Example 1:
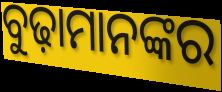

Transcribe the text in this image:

ବୁଢ଼ାମାନଙ୍କର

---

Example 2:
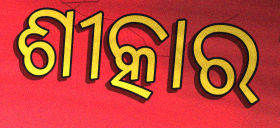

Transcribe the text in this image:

ଶୀତ୍କାର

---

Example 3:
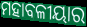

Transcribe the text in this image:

ମହାବଳୀୟାର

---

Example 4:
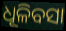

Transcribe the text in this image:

ଧୂଳିବସା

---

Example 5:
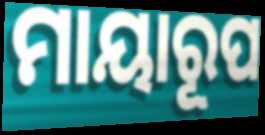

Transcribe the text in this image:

ମାୟାରୂପ